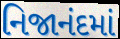
નિજાનંદમાં